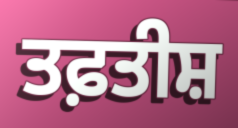
ਤਫ਼ਤੀਸ਼